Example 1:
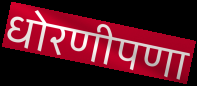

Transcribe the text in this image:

धोरणीपणा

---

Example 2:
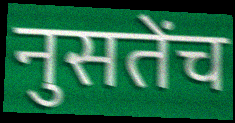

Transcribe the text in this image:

नुसतेंच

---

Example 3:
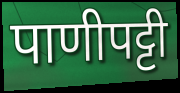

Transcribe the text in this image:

पाणीपट्टी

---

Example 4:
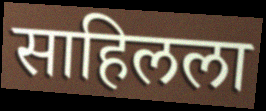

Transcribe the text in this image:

साहिलला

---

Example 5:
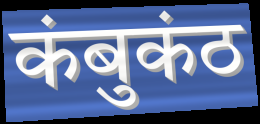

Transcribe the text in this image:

कंबुकंठ